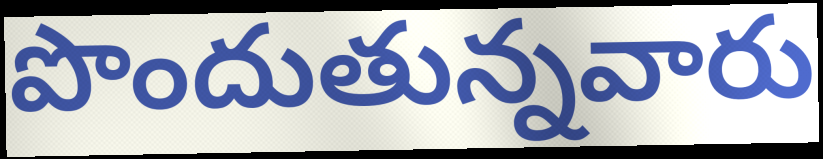
పొందుతున్నవారు